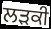
ਲੜਕੀ